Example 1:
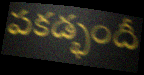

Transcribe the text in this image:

పకడ్భందీ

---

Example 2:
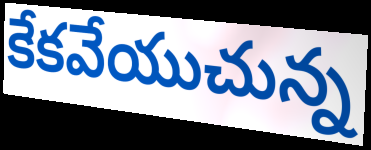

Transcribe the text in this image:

కేకవేయుచున్న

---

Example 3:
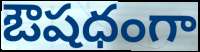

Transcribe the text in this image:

ఔషధంగా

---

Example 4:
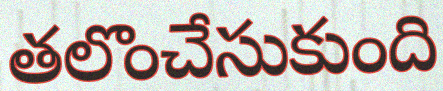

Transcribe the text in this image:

తలొంచేసుకుంది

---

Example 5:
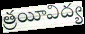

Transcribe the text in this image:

త్రయీవిద్య